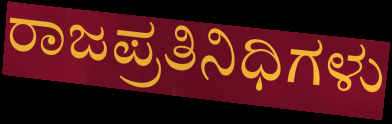
ರಾಜಪ್ರತಿನಿಧಿಗಳು